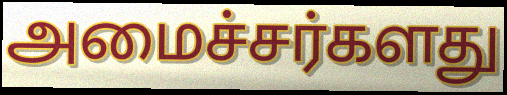
அமைச்சர்களது